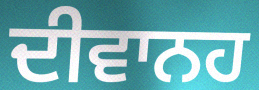
ਦੀਵਾਨਹ